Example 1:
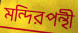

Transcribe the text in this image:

মন্দিরপন্থী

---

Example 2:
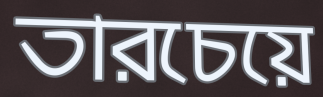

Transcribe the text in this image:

তারচেয়ে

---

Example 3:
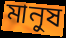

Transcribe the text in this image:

মানুষ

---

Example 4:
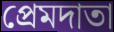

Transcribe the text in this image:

প্রেমদাতা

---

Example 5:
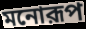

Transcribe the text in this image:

মনোরূপ